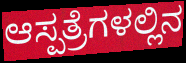
ಆಸ್ಪತ್ರೆಗಳಲ್ಲಿನ